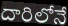
దారిలోనే